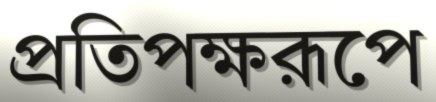
প্রতিপক্ষরূপে